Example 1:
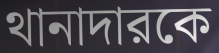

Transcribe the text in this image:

থানাদারকে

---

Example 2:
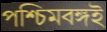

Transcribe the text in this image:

পশ্চিমবঙ্গই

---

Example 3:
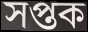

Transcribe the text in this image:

সপ্তক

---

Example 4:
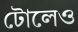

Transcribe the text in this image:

টোলেও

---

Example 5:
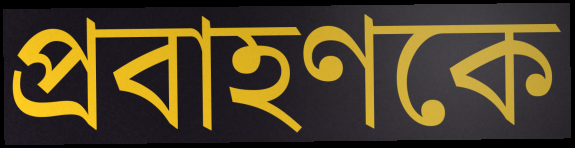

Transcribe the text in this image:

প্রবাহণকে